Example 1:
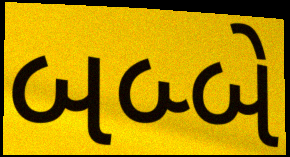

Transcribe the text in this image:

બબ્બે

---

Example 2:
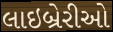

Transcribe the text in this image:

લાઇબ્રેરીઓ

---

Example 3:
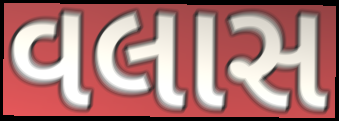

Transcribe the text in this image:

વલાસ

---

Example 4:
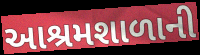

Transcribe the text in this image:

આશ્રમશાળાની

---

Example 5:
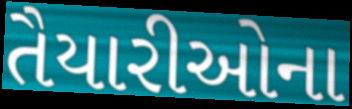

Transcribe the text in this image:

તૈયારીઓના